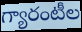
గ్యారంటీల